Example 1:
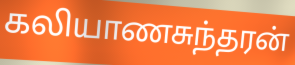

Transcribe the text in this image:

கலியாணசுந்தரன்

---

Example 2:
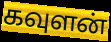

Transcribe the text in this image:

கவுளன்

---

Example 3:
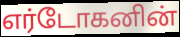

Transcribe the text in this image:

எர்டோகனின்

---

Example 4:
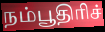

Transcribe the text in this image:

நம்பூதிரிச்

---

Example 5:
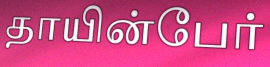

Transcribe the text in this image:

தாயின்பேர்